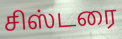
சிஸ்டரை